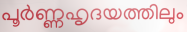
പൂർണ്ണഹൃദയത്തിലും